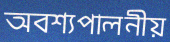
অবশ্যপালনীয়